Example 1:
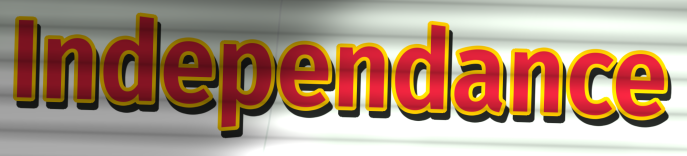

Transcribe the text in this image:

Independance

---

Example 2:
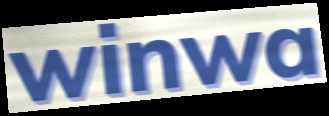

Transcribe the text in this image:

winwa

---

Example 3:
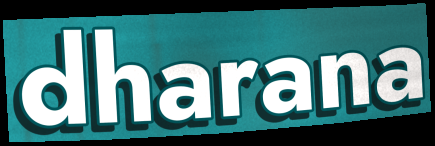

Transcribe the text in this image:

dharana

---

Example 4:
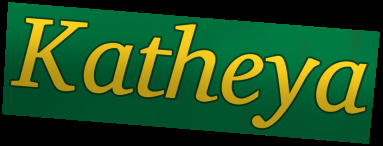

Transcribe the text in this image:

Katheya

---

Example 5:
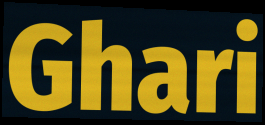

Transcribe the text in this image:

Ghari